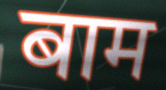
बाम